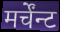
मर्चेंन्ट